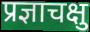
प्रज्ञाचक्षु